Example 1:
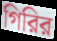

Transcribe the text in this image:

গিরির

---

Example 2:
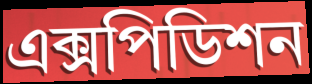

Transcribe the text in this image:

এক্সপিডিশন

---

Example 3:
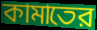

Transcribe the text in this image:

কামাতের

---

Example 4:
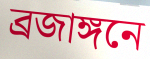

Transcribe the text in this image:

ব্রজাঙ্গনে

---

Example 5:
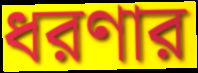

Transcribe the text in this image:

ধরণার